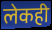
लेकही